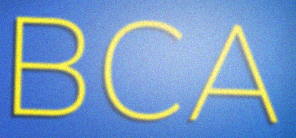
BCA